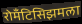
रोमँटिसिझमला